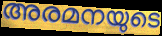
അരമനയുടെ